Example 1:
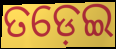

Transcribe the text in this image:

ତଡ଼େଇ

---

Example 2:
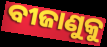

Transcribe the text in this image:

ବୀଜାଣୁକୁ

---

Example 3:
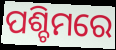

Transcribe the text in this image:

ପଶ୍ଚିମରେ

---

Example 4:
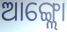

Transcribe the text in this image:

ଆଙ୍ଗ୍ଲୋ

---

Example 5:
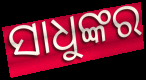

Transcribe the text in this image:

ସାଧୁଙ୍କର